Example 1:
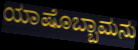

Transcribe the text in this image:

ಯಾಷೊಬ್ಬಾಮನು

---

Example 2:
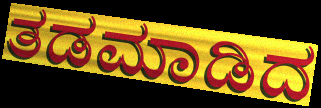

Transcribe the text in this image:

ತಡಮಾಡಿದ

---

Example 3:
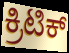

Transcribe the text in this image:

ಕ್ರಿಟಿಕ್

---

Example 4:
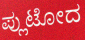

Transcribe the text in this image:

ಪ್ಲುಟೋದ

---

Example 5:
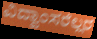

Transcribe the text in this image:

ವಿದ್ವಾಂಸರೆಲ್ಲರ